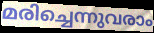
മരിച്ചെന്നുവരാം